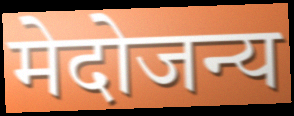
मेदोजन्य